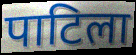
पाटिला